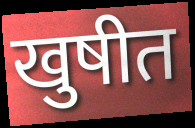
खुषीत